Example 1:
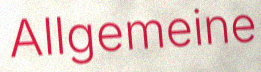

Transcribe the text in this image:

Allgemeine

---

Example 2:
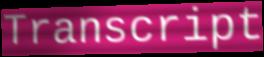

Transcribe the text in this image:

Transcript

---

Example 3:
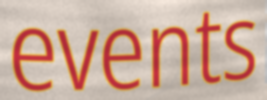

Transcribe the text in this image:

events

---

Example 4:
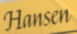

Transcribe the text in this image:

Hansen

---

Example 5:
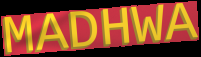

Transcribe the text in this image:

MADHWA